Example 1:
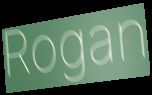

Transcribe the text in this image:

Rogan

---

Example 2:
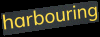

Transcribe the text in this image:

harbouring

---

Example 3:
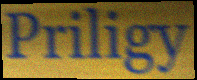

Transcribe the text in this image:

Priligy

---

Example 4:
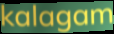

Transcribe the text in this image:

kalagam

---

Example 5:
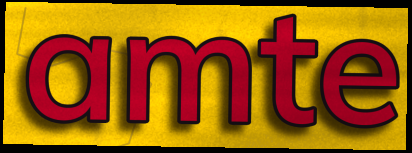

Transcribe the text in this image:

amte